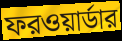
ফরওয়ার্ডার